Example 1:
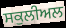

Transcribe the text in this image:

ਸਕੁਲੀਅਲ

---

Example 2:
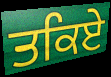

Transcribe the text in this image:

ਤਕਿਏ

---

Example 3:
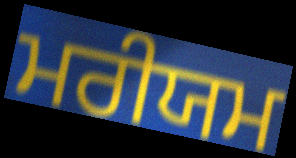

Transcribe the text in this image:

ਮਰੀਯਮ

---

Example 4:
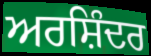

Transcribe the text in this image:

ਅਰਸ਼ਿੰਦਰ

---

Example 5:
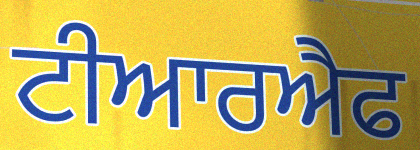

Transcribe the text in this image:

ਟੀਆਰਐਫ